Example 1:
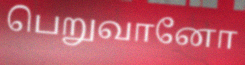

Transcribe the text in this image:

பெறுவானோ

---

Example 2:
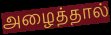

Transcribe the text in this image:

அழைத்தால்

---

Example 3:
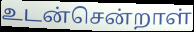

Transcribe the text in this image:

உடன்சென்றாள்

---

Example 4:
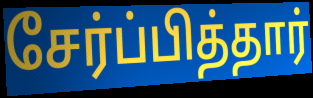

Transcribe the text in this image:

சேர்ப்பித்தார்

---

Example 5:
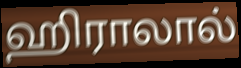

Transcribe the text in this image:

ஹிராலால்